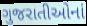
ગુજરાતીઓનાં